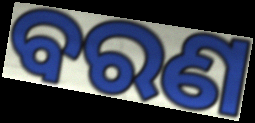
ବରଣ